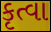
કૃત્વા